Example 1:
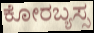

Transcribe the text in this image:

ಕೋರಬ್ಯಸ್ಸ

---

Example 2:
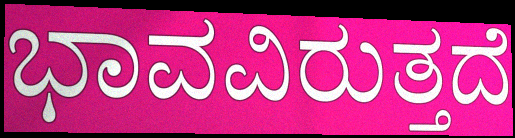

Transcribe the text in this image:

ಭಾವವಿರುತ್ತದೆ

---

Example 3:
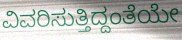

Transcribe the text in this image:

ವಿವರಿಸುತ್ತಿದ್ದಂತೆಯೇ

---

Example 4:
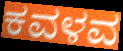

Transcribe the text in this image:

ಕವಳವ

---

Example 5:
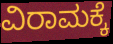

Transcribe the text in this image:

ವಿರಾಮಕ್ಕೆ